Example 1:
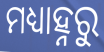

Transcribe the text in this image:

ମଧ୍ୟାହ୍ନରୁ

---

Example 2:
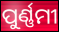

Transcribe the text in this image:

ପୁର୍ଣ୍ଣମୀ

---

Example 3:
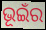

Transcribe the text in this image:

ଭୂଇଁର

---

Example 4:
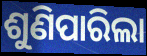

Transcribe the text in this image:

ଶୁଣିପାରିଲା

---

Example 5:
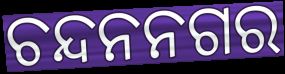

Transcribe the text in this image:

ଚନ୍ଦନନଗର